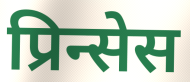
प्रिन्सेस